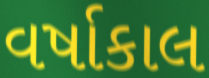
વર્ષાકાલ